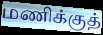
மணிக்குத்